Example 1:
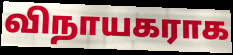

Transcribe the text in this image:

விநாயகராக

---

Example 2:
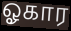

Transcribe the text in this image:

ஓகார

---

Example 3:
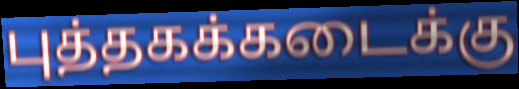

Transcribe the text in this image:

புத்தகக்கடைக்கு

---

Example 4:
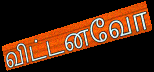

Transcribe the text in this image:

விட்டனவோ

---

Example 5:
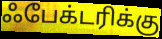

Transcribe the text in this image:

ஃபேக்டரிக்கு